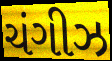
ચંગીઝ